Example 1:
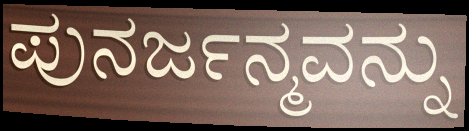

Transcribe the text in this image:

ಪುನರ್ಜನ್ಮವನ್ನು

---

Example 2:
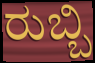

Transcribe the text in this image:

ರುಬ್ಬಿ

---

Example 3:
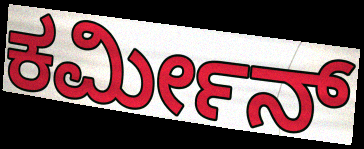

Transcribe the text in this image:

ಕರ್ಮೀನ್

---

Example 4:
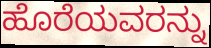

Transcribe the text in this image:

ಹೊರೆಯವರನ್ನು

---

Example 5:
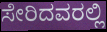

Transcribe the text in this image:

ಸೇರಿದವರಲ್ಲಿ